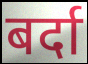
बर्दा